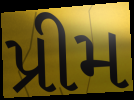
પ્રીમ